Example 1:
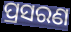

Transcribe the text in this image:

ପ୍ରସରଣ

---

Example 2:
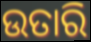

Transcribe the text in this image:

ଉତାରି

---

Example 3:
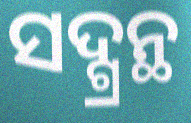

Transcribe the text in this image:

ସଦ୍ଗ୍ରନ୍ଥ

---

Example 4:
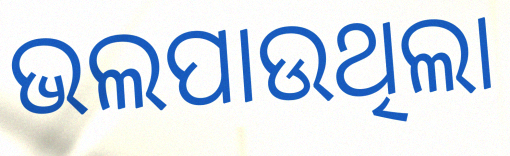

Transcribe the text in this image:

ଭଲପାଉଥିଲା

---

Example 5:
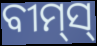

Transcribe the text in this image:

ବୀମ୍‌ସ୍